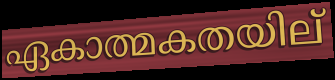
ഏകാത്മകതയില്